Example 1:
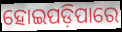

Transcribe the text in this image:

ହୋଇପଡ଼ିପାରେ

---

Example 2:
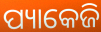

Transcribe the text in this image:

ପ୍ୟାକେଜି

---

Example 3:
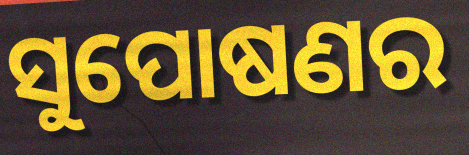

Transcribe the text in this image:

ସୁପୋଷଣର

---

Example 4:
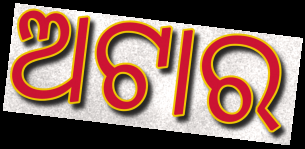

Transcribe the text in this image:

ଅଟାର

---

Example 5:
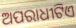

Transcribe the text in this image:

ଅପରାଧୀଟିଏ